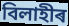
বিলাহীৰ